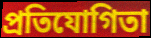
প্রতিযোগিতা